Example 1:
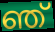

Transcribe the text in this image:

ഞ്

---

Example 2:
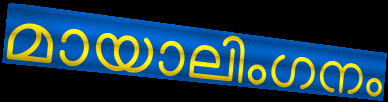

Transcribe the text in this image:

മായാലിംഗനം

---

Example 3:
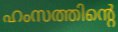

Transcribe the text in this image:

ഹംസത്തിന്റെ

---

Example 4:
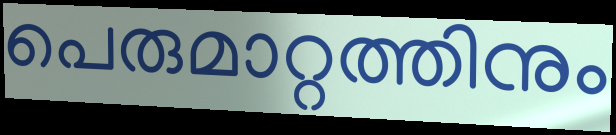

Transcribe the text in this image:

പെരുമാറ്റത്തിനും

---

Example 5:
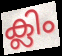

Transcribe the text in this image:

ക്ലിം